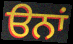
ੳਨਾਂ